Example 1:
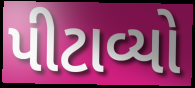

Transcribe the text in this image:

પીટાવ્યો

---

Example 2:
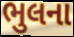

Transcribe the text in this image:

ભુલના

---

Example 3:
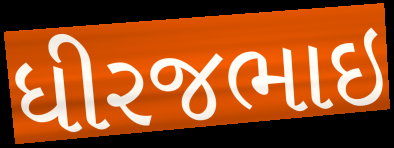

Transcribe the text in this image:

ધીરજભાઇ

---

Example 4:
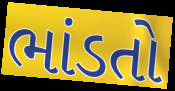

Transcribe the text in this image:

ભાંડતો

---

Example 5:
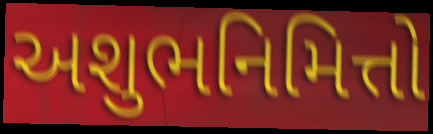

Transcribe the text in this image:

અશુભનિમિત્તો